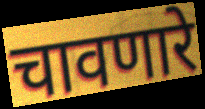
चावणारे